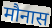
मौनास